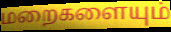
மறைகளையும்